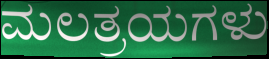
ಮಲತ್ರಯಗಳು